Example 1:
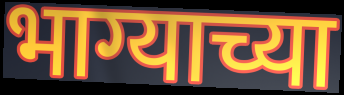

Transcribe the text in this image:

भाग्याच्या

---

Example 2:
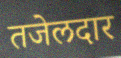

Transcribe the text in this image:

तजेलदार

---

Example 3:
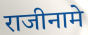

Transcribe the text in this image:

राजीनामे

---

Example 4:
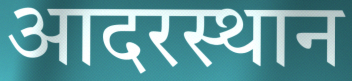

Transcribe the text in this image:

आदरस्थान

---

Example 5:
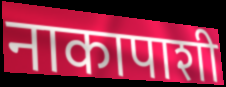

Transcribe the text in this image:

नाकापाशी